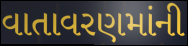
વાતાવરણમાંની